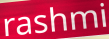
rashmi